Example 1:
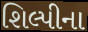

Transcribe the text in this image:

શિલ્પીના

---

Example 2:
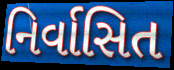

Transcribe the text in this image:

નિર્વાસિત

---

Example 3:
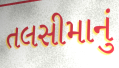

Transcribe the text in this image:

તલસીમાનું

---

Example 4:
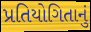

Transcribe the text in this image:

પ્રતિયોગિતાનું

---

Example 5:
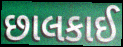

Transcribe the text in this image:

છાલકાઈ